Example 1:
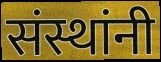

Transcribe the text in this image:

संस्थांनी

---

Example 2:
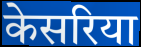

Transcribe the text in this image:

केसरिया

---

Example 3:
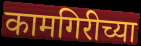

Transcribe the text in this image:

कामगिरीच्या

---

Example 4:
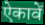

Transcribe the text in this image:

ऐकावें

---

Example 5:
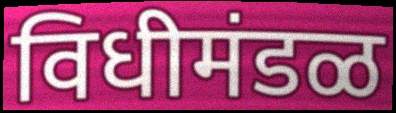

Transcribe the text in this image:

विधीमंडळ